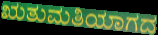
ಋತುಮತಿಯಾಗದ